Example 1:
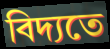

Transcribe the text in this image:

বিদ্যতে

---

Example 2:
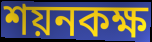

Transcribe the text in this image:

শয়নকক্ষ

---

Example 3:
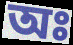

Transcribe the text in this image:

অঃ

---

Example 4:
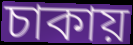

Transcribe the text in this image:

চাকায়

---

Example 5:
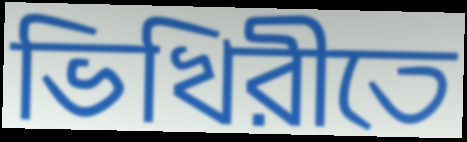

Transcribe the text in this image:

ভিখিরীতে